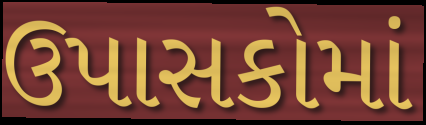
ઉપાસકોમાં